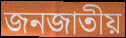
জনজাতীয়